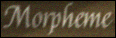
Morpheme